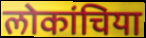
लोकांचिया